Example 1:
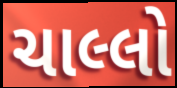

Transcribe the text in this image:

ચાલ્લો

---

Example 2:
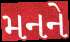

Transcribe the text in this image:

મનને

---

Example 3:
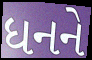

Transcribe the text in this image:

ધનને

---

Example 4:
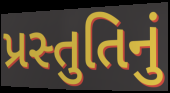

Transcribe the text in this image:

પ્રસ્તુતિનું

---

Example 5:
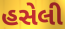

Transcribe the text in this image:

હસેલી